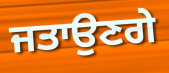
ਜਤਾਉਣਗੇ